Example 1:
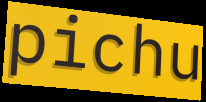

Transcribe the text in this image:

pichu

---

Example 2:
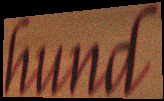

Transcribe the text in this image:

hund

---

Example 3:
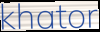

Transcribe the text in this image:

khator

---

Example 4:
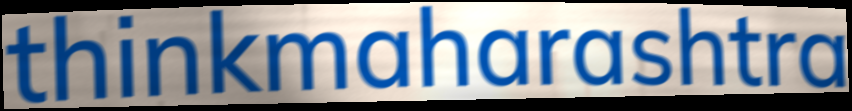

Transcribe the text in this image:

thinkmaharashtra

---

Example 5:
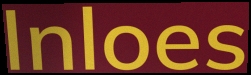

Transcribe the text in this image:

Inloes